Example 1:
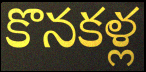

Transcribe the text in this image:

కొనకళ్ల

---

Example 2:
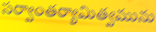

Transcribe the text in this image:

సర్వాంతర్యామిత్వమును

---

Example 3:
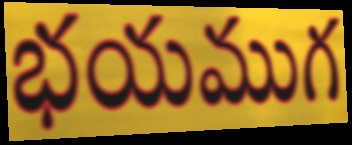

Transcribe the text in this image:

భయముగ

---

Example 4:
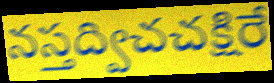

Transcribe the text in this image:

నస్తద్విచచక్షిరే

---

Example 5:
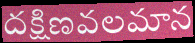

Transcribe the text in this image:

దక్షిణవలమాన